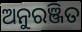
ଅନୁରଞ୍ଜିତ